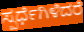
ಸ್ಪರ್ಧೆಗಿಳಿದರೆ